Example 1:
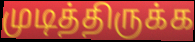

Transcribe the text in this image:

முடித்திருக்க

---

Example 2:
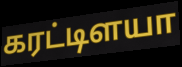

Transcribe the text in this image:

கரட்டிளயா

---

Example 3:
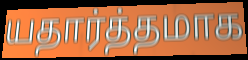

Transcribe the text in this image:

யதார்த்தமாக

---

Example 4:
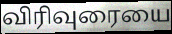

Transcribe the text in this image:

விரிவுரையை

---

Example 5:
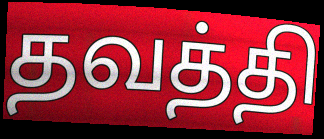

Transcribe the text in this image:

தவத்தி